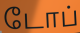
டோப்